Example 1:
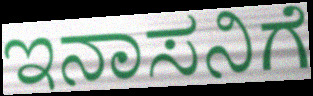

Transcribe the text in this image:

ಇನಾಸನಿಗೆ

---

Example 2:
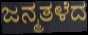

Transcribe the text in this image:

ಜನ್ಮತಳೆದ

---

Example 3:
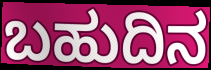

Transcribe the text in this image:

ಬಹುದಿನ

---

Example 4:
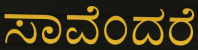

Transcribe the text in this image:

ಸಾವೆಂದರೆ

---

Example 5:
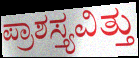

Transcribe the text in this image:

ಪ್ರಾಶಸ್ತ್ಯವಿತ್ತು